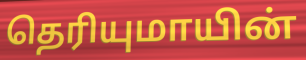
தெரியுமாயின்